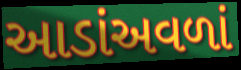
આડાંઅવળાં